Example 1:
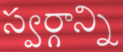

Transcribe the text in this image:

స్వర్గాన్ని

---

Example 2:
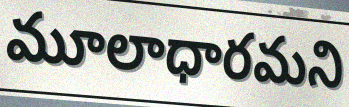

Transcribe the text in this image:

మూలాధారమని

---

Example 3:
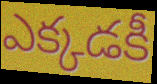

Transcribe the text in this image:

ఎక్కడకీ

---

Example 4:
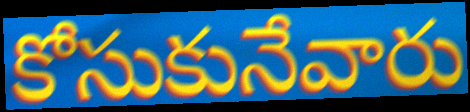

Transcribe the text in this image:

కోసుకునేవారు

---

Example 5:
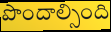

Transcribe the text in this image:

పొందాల్సింది